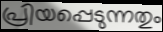
പ്രിയപ്പെടുന്നതും